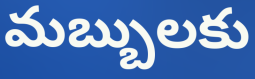
మబ్బులకు